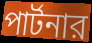
পার্টনার